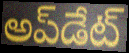
అప్‌డేట్